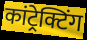
कांट्रेक्टिंग